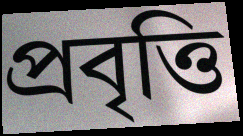
প্রবৃত্তি